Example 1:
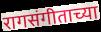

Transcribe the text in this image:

रागसंगीताच्या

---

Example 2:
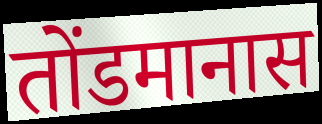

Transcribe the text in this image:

तोंडमानास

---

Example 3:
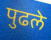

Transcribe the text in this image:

पुढले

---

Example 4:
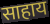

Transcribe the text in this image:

साहाय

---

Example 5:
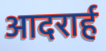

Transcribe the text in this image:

आदरार्ह